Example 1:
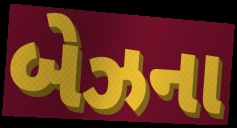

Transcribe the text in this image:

બેઝના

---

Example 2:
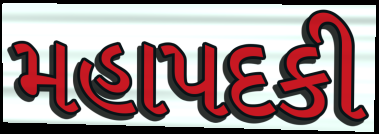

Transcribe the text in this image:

મહાપદકી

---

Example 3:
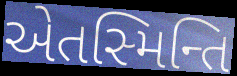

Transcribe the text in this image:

એતસ્મિન્તિ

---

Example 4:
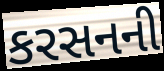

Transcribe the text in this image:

કરસનની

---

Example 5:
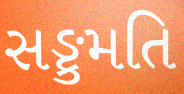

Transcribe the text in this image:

સઙ્કમતિ